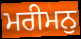
ਮਰੀਮਨੁ